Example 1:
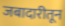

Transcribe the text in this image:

जबादारीतून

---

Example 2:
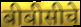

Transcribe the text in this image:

बीबीसीचे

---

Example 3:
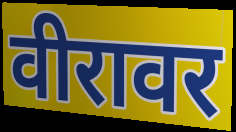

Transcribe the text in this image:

वीरावर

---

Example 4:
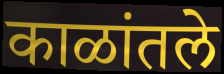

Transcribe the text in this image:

काळांतले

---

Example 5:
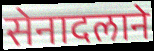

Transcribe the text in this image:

सेनादलाने